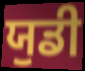
ਯੁਡੀ